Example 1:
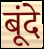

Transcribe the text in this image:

बूंदे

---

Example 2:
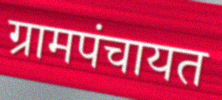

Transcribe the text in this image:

ग्रामपंचायत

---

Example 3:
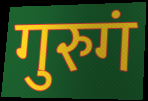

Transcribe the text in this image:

गुरुगं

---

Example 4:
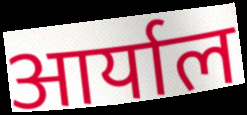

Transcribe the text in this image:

आर्याल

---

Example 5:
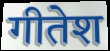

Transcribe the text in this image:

गीतेश